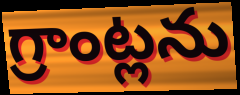
గ్రాంట్లను